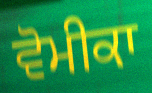
ਵੋਮੀਕਾ